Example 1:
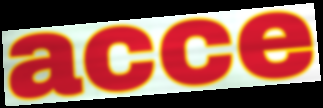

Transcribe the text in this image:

acce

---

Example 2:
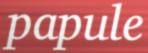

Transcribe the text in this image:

papule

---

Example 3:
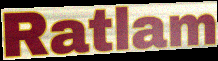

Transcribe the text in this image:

Ratlam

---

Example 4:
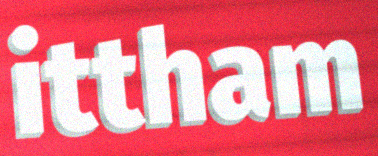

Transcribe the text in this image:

ittham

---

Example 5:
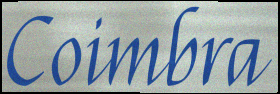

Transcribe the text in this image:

Coimbra